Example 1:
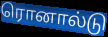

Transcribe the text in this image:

ரொனால்டு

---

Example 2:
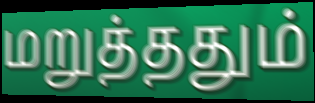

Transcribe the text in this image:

மறுத்ததும்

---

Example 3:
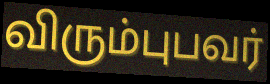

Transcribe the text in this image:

விரும்புபவர்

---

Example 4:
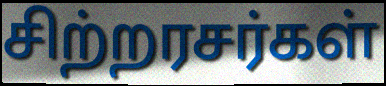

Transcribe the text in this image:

சிற்றரசர்கள்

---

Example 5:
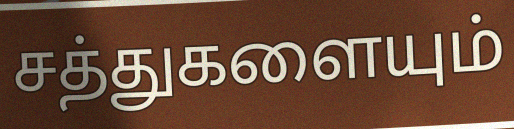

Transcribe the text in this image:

சத்துகளையும்